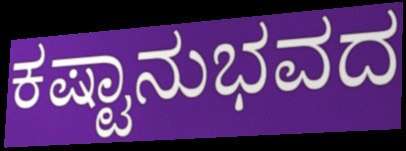
ಕಷ್ಟಾನುಭವದ